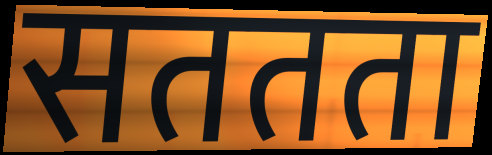
सततता